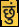
छुं